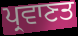
ਪ੍ਰਵਾਣਤ